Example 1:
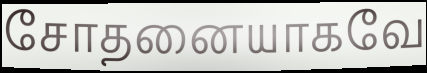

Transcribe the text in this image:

சோதனையாகவே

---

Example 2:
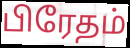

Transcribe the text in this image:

பிரேதம்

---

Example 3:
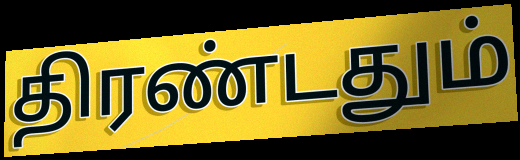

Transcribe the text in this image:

திரண்டதும்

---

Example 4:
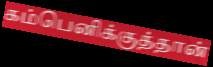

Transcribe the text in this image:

கம்பெனிக்குத்தான்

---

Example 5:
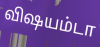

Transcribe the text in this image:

விஷயம்டா